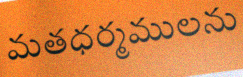
మతధర్మములను